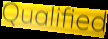
Qualified